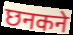
छनकने